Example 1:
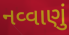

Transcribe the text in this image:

નવ્વાણું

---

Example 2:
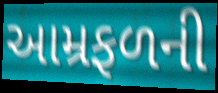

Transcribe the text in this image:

આમ્રફળની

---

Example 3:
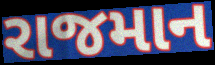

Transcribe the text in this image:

રાજમાન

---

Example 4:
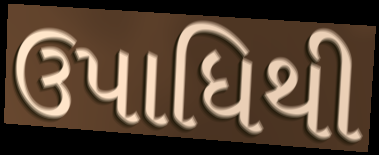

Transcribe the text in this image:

ઉપાધિથી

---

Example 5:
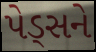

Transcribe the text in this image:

પેડ્સને